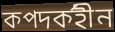
কপদর্কহীন